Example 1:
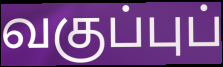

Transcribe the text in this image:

வகுப்புப்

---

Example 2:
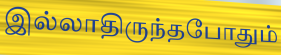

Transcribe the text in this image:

இல்லாதிருந்தபோதும்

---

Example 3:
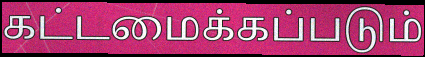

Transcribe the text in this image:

கட்டமைக்கப்படும்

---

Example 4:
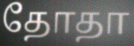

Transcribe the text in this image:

தோதா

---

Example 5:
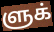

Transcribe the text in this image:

ளுக்